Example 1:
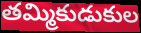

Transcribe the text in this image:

తమ్మికుడుకుల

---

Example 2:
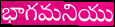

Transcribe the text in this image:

భాగమనియు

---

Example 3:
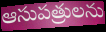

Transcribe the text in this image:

ఆసుపత్రులను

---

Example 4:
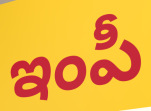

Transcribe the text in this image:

ఇంపీ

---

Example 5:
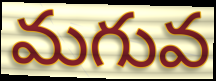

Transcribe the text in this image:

మగువ